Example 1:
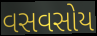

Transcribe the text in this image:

વસવસોય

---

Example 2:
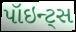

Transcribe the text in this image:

પૉઇન્ટ્સ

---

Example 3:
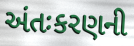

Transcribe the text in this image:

અંતઃકરણની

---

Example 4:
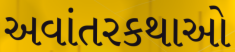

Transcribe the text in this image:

અવાંતરકથાઓ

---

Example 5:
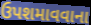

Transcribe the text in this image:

ઉપશમાવવાના